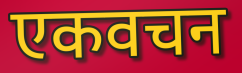
एकवचन